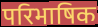
परिभाषिक